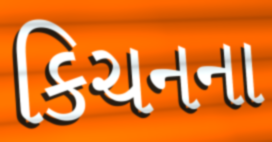
કિચનના